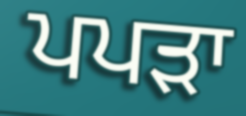
ਪਪੜਾ